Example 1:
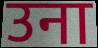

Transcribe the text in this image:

उना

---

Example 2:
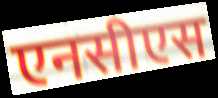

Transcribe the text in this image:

एनसीएस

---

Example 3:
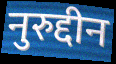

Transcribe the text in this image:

नुरुद्दीन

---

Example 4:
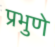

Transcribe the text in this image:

प्रभुणे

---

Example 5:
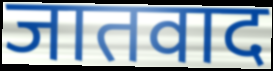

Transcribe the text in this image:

जातवाद